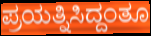
ಪ್ರಯತ್ನಿಸಿದ್ದಂತೂ